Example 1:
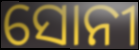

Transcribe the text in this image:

ସୋନୀ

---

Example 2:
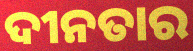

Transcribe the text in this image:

ଦୀନତାର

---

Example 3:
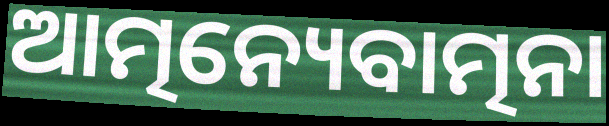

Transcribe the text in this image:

ଆତ୍ମନ୍ୟେବାତ୍ମନା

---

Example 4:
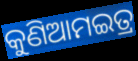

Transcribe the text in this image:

କୁଣିଆମଇତ୍ର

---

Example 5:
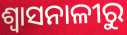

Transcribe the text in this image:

ଶ୍ୱାସନାଳୀରୁ